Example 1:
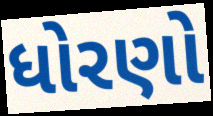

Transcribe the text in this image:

ધોરણો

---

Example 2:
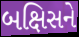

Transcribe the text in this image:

બક્ષિસને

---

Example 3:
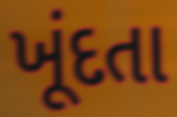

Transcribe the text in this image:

ખૂંદતા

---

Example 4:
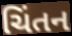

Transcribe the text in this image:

ચિંતન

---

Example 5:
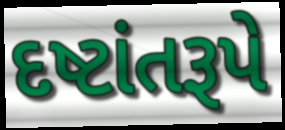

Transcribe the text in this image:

દષ્ટાંતરૂપે